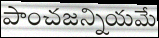
పాంచజన్నియమే